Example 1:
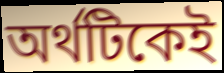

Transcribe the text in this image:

অর্থটিকেই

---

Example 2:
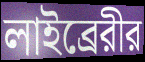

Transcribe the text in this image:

লাইব্রেরীর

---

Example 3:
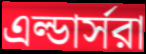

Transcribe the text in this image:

এল্ডার্সরা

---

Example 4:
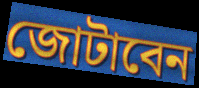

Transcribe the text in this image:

জোটাবেন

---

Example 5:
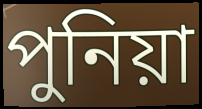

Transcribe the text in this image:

পুনিয়া